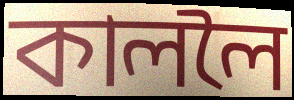
কাললৈ